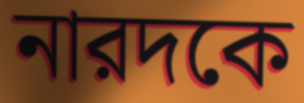
নারদকে